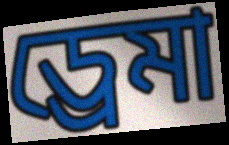
ড্রেমা